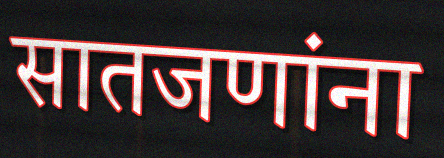
सातजणांना